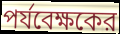
পর্যবেক্ষকের